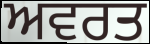
ਅਵਰਤ